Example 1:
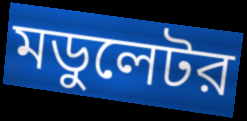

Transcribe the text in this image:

মডুলেটর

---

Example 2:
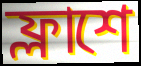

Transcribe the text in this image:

ফ্লাশে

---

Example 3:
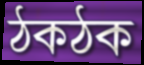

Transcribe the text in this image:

ঠকঠক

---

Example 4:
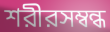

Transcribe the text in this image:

শরীরসম্বন্ধ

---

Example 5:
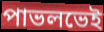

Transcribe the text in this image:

পাভলভেই